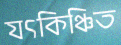
যৎকিঞ্চিত